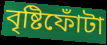
বৃষ্টিফোঁটা